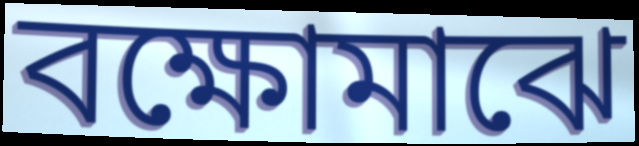
বক্ষোমাঝে